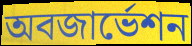
অবজার্ভেশন